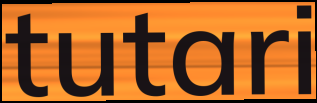
tutari